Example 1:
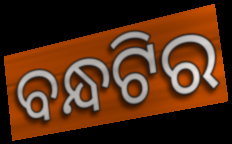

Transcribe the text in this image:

ବନ୍ଧଟିର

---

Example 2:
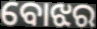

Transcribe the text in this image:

ବୋଝର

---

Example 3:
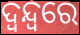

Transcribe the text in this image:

ଦ୍ୱନ୍ଦ୍ବରେ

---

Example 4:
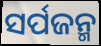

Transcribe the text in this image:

ସର୍ପଜନ୍ମ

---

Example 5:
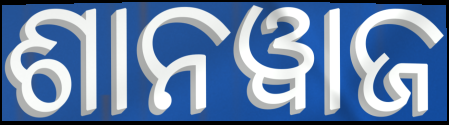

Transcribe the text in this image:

ଶାନୱାଜ